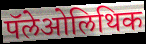
पॅलेओलिथिक